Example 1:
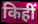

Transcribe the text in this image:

किहीं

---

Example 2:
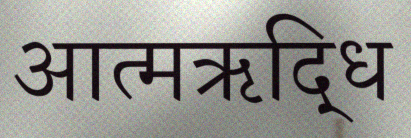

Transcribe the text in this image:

आत्मऋद्धि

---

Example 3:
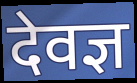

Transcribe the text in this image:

देवज्ञ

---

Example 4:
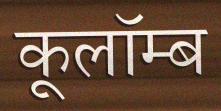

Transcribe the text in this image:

कूलॉम्ब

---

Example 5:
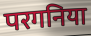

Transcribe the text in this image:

परगनिया